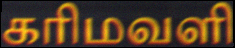
கரிமவளி